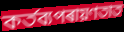
কৰ্তব্যপৰায়ণতাত